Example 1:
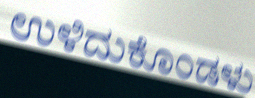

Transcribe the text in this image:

ಉಳಿದುಕೊಂಡಳು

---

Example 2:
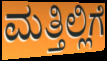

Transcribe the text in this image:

ಮತ್ತಿಲ್ಲಿಗೆ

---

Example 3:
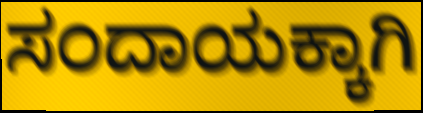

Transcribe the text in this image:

ಸಂದಾಯಕ್ಕಾಗಿ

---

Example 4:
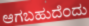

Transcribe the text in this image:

ಆಗಬಹುದೆಂದು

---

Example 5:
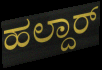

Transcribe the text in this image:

ಹಲ್ದಾರ್